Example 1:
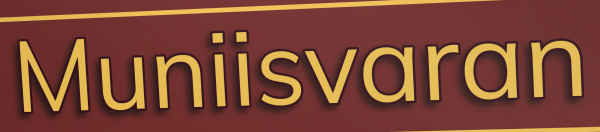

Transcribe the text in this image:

Muniisvaran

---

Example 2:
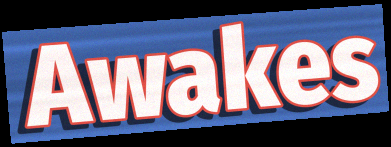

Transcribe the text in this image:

Awakes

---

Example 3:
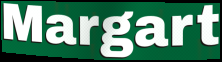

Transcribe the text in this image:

Margart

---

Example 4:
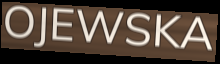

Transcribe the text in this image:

OJEWSKA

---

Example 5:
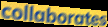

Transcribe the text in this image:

collaborates